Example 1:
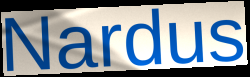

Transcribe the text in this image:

Nardus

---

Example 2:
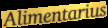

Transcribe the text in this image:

Alimentarius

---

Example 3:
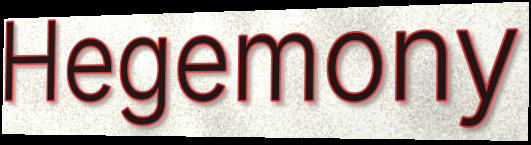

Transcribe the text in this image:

Hegemony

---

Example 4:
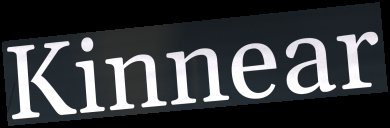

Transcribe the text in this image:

Kinnear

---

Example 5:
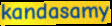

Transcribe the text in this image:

kandasamy